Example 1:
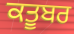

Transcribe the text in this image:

ਕਤੂਬਰ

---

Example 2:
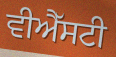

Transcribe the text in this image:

ਵੀਐੱਸਟੀ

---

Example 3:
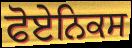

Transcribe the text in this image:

ਫੋਏਨਿਕਸ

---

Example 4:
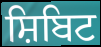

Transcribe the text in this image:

ਸ਼ਿਬਿਟ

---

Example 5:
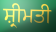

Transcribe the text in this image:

ਸ਼੍ਰੀਮਤੀ